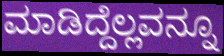
ಮಾಡಿದ್ದೆಲ್ಲವನ್ನೂ